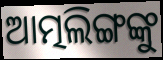
ଆତ୍ମଲିଙ୍ଗଙ୍କୁ